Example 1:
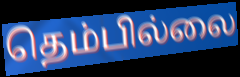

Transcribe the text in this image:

தெம்பில்லை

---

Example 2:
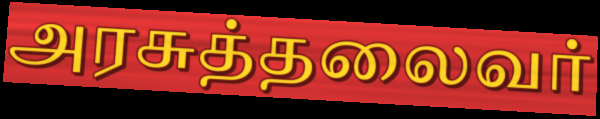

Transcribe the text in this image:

அரசுத்தலைவர்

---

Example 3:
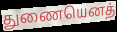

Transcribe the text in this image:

துணையெனத்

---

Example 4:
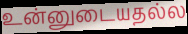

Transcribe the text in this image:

உன்னுடையதல்ல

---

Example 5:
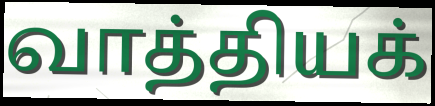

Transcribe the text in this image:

வாத்தியக்